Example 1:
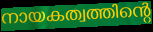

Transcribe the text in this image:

നായകത്വത്തിന്റെ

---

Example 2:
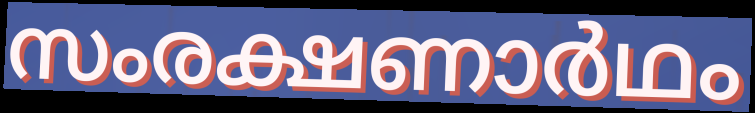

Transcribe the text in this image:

സംരക്ഷണാർഥം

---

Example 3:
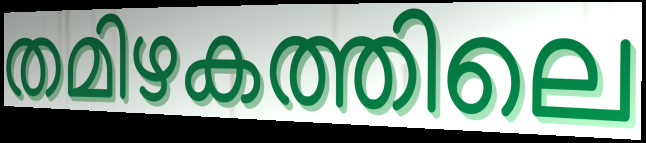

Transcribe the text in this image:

തമിഴകത്തിലെ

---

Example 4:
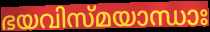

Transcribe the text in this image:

ഭയവിസ്മയാന്ധാഃ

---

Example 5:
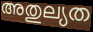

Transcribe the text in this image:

അതുല്യത